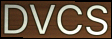
DVCS